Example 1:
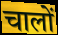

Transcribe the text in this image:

चालों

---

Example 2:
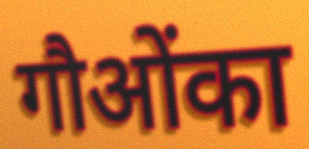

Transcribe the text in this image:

गौओंका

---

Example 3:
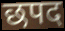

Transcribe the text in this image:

छपद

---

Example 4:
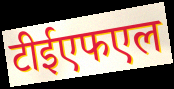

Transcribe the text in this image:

टीईएफएल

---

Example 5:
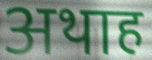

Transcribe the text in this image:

अथाह